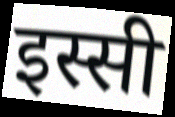
इस्सी